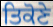
ਤਿਕੋਣੇ